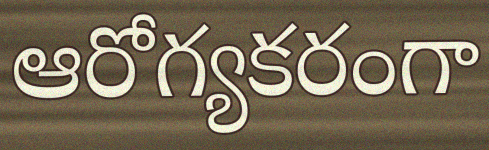
ఆరోగ్యకరంగా